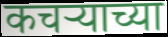
कचर्‍याच्या